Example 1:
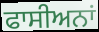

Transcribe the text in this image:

ਫਾਸੀਅਨਾਂ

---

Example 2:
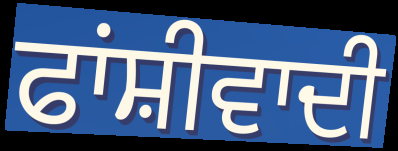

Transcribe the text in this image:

ਫਾਂਸ਼ੀਵਾਦੀ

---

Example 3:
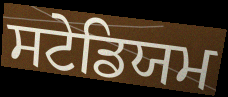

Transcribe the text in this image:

ਸਟੇਡਿਯਮ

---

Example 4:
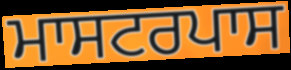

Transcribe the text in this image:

ਮਾਸਟਰਪਾਸ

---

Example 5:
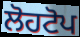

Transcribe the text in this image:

ਲੋਹਟੋਪ